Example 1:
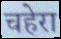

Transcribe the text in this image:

चहेरा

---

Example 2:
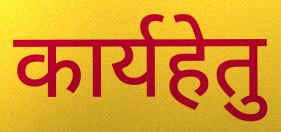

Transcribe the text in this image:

कार्यहेतु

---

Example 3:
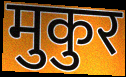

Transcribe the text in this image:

मुकुर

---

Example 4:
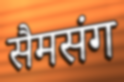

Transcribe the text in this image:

सैमसंग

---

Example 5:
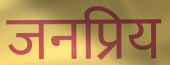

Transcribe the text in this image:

जनप्रिय